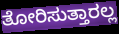
ತೋರಿಸುತ್ತಾರಲ್ಲ